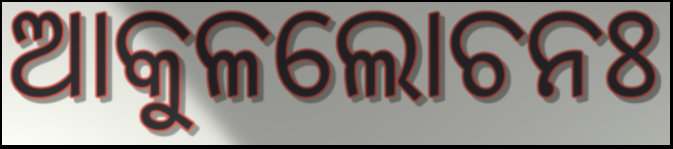
ଆକୁଳଲୋଚନଃ